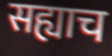
सह्याच